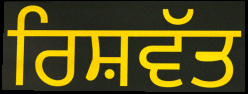
ਰਿਸ਼ਵੱਤ